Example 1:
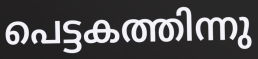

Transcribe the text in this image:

പെട്ടകത്തിന്നു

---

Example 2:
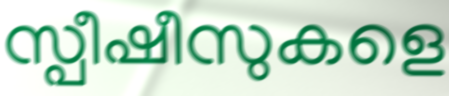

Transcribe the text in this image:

സ്പീഷീസുകളെ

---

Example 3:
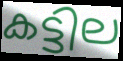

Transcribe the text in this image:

കട്ടില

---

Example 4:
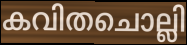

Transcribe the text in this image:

കവിതചൊല്ലി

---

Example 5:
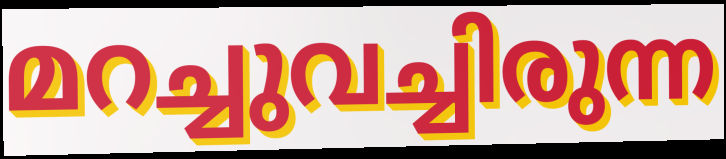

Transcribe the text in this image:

മറച്ചുവച്ചിരുന്ന